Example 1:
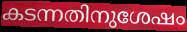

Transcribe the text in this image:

കടന്നതിനുശേഷം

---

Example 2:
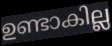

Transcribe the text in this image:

ഉണ്ടാകില്ല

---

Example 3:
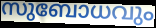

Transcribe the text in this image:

സുബോധവും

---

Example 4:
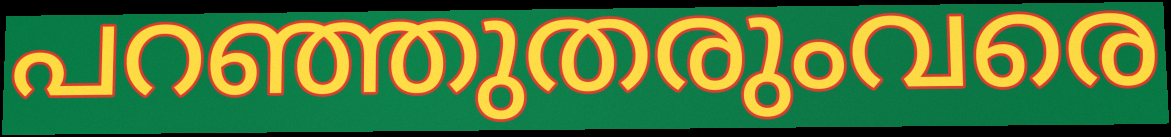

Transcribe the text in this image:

പറഞ്ഞുതരുംവരെ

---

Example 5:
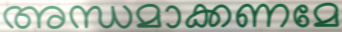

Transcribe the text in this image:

അന്ധമാക്കണമേ